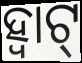
ହ୍ବାଟ୍